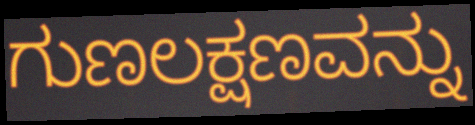
ಗುಣಲಕ್ಷಣವನ್ನು